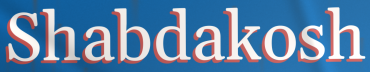
Shabdakosh